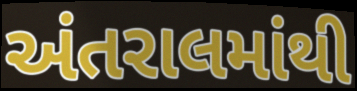
અંતરાલમાંથી